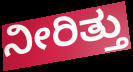
ನೀರಿತ್ತು